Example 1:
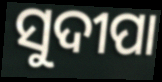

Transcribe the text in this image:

ସୁଦୀପା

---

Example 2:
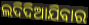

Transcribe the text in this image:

ଲଦିଦିଆଯିବାର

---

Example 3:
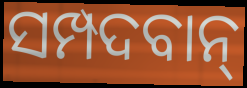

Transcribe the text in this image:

ସମ୍ପଦବାନ୍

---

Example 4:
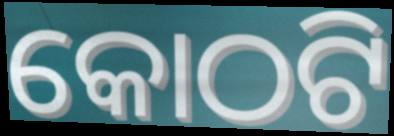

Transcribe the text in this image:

କୋଠଟି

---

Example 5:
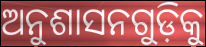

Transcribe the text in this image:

ଅନୁଶାସନଗୁଡ଼ିକୁ